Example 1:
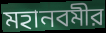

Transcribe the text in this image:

মহানবমীর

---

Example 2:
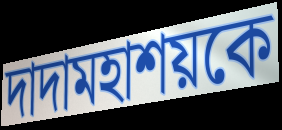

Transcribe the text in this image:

দাদামহাশয়কে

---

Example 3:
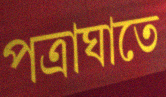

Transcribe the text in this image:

পত্রাঘাতে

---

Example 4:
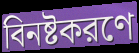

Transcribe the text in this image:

বিনষ্টকরণে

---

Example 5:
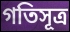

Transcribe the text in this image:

গতিসূত্র